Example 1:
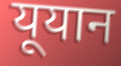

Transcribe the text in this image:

यूयान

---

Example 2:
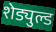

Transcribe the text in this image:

शेड्युल्ड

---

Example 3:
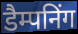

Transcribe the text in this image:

डैम्पनिंग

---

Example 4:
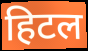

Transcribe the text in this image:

हिटल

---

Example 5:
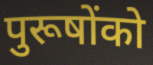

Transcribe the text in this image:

पुरूषोंको